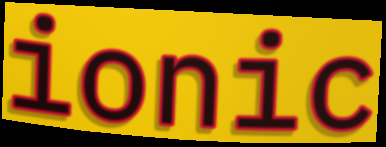
ionic